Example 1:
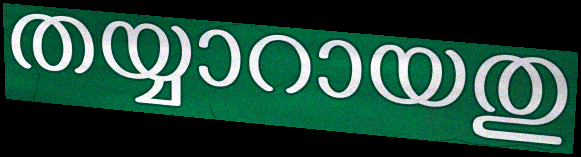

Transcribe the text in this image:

തയ്യാറായതു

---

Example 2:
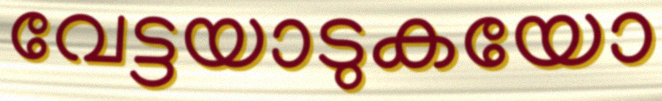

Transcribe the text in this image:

വേട്ടയാടുകയോ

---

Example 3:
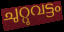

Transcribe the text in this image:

ചുറ്റുവട്ടം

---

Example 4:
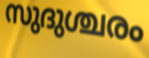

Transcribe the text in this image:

സുദുശ്ചരം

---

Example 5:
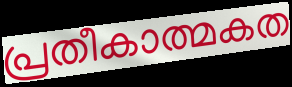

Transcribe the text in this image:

പ്രതീകാത്മകത